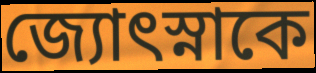
জ্যোৎস্নাকে